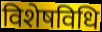
विशेषविधि